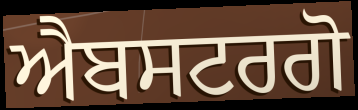
ਐਬਸਟਰਗੋ